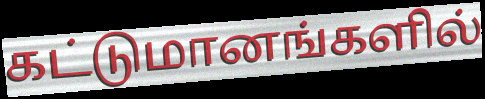
கட்டுமானங்களில்